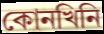
কোনখিনি